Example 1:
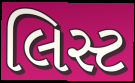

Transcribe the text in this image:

લિસ્ટ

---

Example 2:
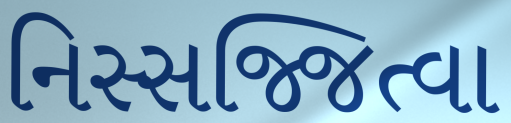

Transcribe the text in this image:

નિસ્સજ્જિત્વા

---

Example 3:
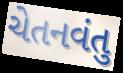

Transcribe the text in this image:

ચેતનવંતુ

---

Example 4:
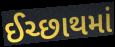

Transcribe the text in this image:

ઈચ્છાથમાં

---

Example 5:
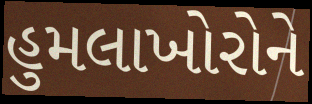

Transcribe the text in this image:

હુમલાખોરોને